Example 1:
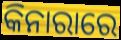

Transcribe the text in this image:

କିନାରାରେ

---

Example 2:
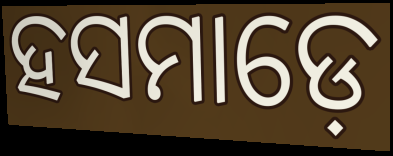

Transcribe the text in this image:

ହସମାଡ଼େ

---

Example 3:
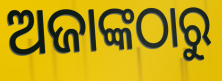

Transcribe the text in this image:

ଅଜାଙ୍କଠାରୁ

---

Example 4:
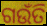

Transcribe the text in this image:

ଗଉଁତି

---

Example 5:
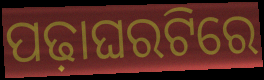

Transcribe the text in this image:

ପଢ଼ାଘରଟିରେ